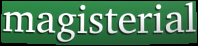
magisterial